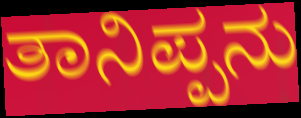
ತಾನಿಪ್ಪನು